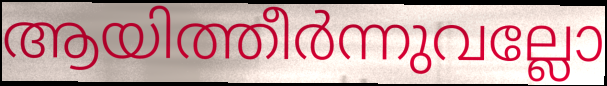
ആയിത്തീർന്നുവല്ലോ